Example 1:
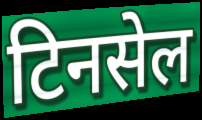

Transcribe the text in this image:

टिनसेल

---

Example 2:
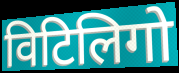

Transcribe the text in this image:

विटिलिगो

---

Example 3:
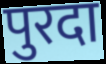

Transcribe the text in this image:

पुरदा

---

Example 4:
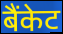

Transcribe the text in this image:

बैंकेट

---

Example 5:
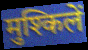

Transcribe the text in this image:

मुश्किलें